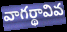
వాగర్థావివ